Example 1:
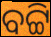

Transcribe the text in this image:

ବଟ୍ଟି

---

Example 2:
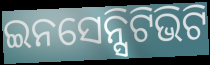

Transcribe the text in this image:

ଇନସେନ୍ସିଟିଭିଟି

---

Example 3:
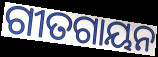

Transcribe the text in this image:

ଗୀତଗାୟନ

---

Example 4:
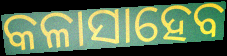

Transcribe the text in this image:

କଳାସାହେବ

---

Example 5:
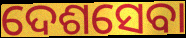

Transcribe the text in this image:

ଦେଶସେବା